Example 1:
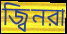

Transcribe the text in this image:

জ্বিনরা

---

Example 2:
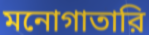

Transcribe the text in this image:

মনোগাতারি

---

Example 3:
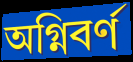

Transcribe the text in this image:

অগ্নিবর্ণ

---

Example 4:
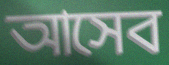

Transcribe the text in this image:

আসেব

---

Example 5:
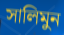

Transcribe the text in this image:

সালিমুন